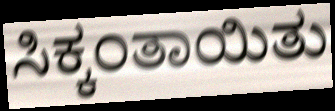
ಸಿಕ್ಕಂತಾಯಿತು